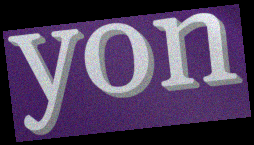
yon